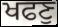
ਖਫਣੁ